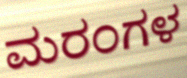
ಮರಂಗಳ